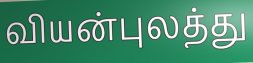
வியன்புலத்து